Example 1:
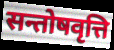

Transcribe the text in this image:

सन्तोषवृत्ति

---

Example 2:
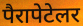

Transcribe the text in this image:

पैरापेटेलर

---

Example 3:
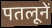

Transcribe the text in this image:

पतलूनें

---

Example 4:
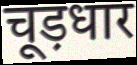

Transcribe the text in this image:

चूड़धार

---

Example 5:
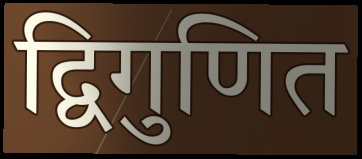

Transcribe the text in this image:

द्विगुणित